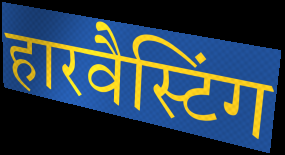
हारवैस्टिंग